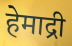
हेमाद्री